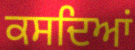
ਕਸਦਿਆਂ